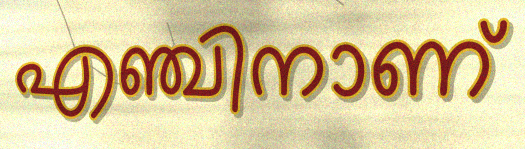
എഞ്ചിനാണ്